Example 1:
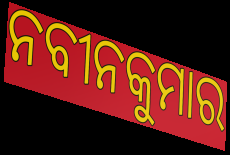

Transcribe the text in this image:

ନବୀନକୁମାର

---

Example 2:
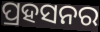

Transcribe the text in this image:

ପ୍ରହସନର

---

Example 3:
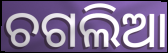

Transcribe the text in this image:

ଚଗଲିଆ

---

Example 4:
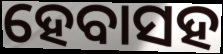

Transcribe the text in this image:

ହେବାସହ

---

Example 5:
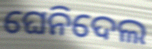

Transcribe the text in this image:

ଘେନିଦେଲ